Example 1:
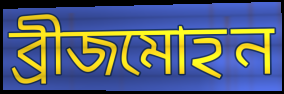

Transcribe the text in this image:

ব্রীজমোহন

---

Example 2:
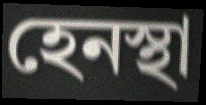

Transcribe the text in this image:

হেনস্থা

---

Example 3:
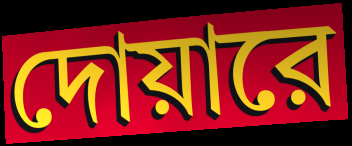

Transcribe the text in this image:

দোয়ারে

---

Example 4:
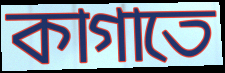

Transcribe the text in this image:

কাগাতে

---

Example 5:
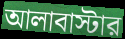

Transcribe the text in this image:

আলাবাস্টার